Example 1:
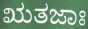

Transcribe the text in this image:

ಋತಜಾಃ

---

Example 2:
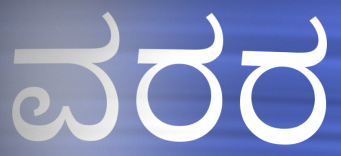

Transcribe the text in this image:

ವರರ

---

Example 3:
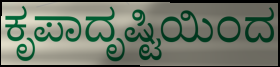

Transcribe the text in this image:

ಕೃಪಾದೃಷ್ಟಿಯಿಂದ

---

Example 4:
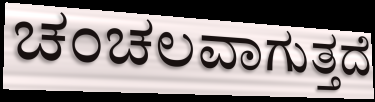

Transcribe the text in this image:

ಚಂಚಲವಾಗುತ್ತದೆ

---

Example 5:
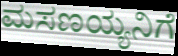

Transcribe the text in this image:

ಮಸಣಯ್ಯನಿಗೆ